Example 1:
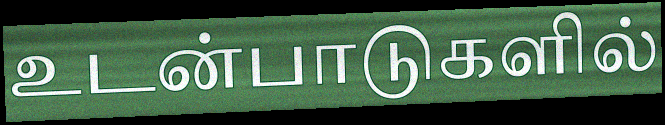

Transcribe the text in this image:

உடன்பாடுகளில்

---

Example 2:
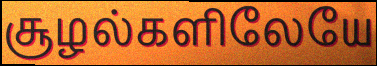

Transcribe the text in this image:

சூழல்களிலேயே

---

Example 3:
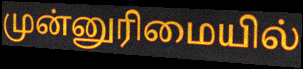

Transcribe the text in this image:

முன்னுரிமையில்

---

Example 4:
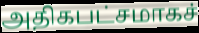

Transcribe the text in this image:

அதிகபட்சமாகச்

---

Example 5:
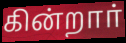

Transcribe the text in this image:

கின்றார்